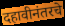
दहावीनंतरचे